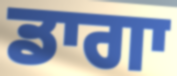
ਡਾਗਾ